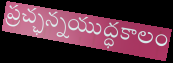
ప్రచ్ఛన్నయుద్ధకాలం